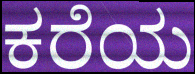
ಕರೆಯ